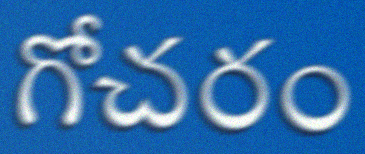
గోచరం